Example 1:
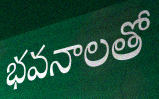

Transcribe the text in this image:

భవనాలతో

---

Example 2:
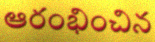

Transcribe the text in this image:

ఆరంభించిన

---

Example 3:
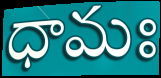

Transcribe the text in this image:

ధామః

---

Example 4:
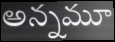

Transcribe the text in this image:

అన్నమూ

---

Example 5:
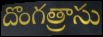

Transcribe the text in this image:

దొంగత్రాసు